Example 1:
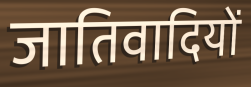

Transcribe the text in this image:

जातिवादियों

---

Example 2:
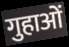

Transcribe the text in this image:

गुहाओं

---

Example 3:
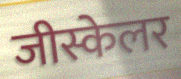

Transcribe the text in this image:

जीस्केलर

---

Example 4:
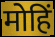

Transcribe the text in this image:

मोहिं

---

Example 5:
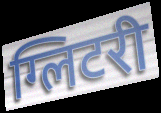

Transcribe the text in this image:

ग्लिटरी